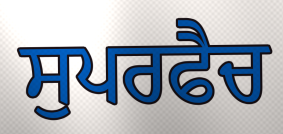
ਸੁਪਰਫੈਚ